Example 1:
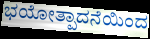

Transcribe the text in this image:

ಭಯೋತ್ಪಾದನೆಯಿಂದ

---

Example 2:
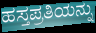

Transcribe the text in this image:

ಹಸ್ತಪ್ರತಿಯನ್ನು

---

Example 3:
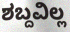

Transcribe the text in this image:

ಶಬ್ದವಿಲ್ಲ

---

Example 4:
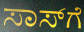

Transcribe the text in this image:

ಸಾಸ್‌ಗೆ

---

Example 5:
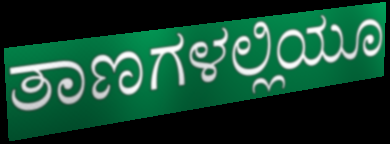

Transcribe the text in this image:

ತಾಣಗಳಲ್ಲಿಯೂ